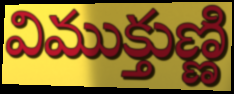
విముక్తుణ్ణి